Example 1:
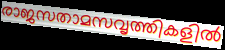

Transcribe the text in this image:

രാജസതാമസവൃത്തികളിൽ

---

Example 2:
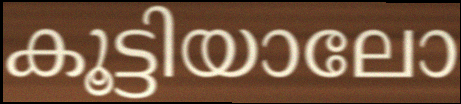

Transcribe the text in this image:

കൂട്ടിയാലോ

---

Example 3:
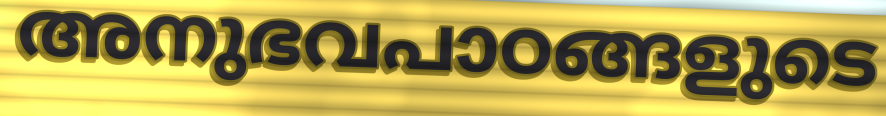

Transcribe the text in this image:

അനുഭവപാഠങ്ങളുടെ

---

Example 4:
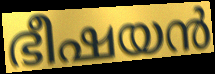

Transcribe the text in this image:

ഭീഷയൻ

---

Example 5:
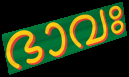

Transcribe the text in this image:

ഭാവഃ